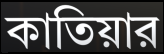
কাতিয়ার